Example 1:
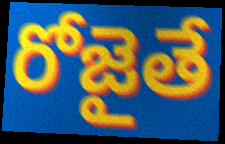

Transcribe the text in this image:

రోజైతే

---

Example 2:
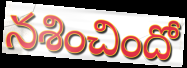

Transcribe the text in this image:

నశించిందో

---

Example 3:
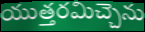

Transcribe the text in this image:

యుత్తరమిచ్చెను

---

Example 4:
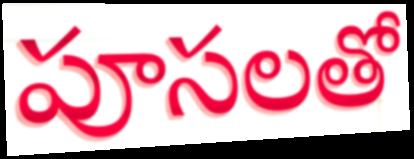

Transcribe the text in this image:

పూసలతో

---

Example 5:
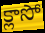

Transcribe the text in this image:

క్లాసో